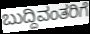
ಬುದ್ದಿವಂತರಿಗೆ